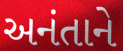
અનંતાને